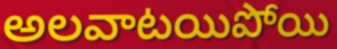
అలవాటయిపోయి